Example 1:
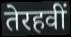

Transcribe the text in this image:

तेरहवीं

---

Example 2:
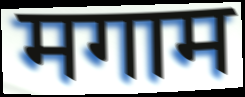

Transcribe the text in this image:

मगाम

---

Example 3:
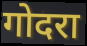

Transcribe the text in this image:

गोदरा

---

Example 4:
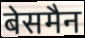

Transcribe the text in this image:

बेसमैन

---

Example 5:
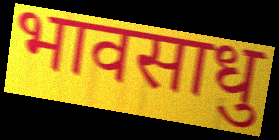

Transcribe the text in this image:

भावसाधु